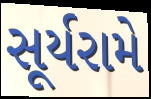
સૂર્યરામે